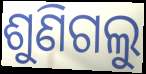
ଶୁଣିଗଲୁ